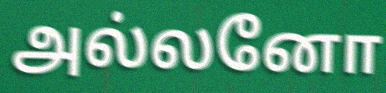
அல்லனோ